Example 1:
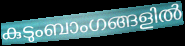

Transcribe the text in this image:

കുടുംബാംഗങ്ങളിൽ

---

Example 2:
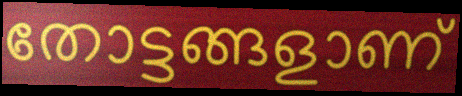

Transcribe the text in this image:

തോട്ടങ്ങളാണ്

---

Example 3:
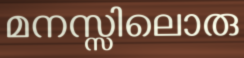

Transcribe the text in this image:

മനസ്സിലൊരു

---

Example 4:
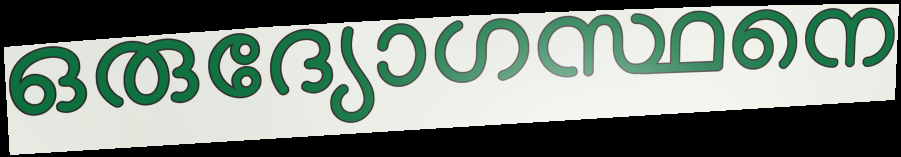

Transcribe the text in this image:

ഒരുദ്യോഗസ്ഥനെ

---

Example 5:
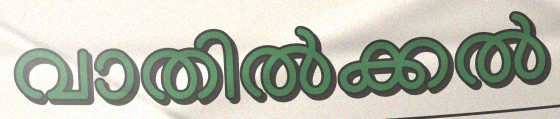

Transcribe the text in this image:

വാതിൽക്കൽ